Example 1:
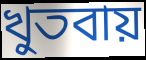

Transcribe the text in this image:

খুতবায়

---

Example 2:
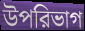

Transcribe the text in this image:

উপরিভাগ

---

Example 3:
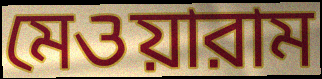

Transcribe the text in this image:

মেওয়ারাম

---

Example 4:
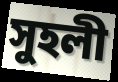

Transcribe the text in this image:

সুহলী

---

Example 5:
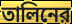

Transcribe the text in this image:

তালিনের